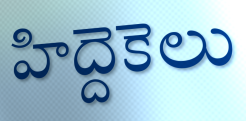
హిద్దెకెలు